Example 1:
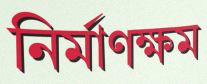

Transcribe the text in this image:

নির্মাণক্ষম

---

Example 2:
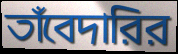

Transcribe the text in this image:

তাঁবেদারির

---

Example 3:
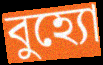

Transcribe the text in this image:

বুহ্যো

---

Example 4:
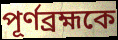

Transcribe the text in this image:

পূর্ণব্রহ্মকে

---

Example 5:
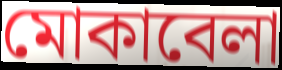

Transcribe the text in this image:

মোকাবেলা